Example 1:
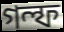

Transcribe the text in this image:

গল্ফ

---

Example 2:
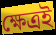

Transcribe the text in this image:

ক্ষেত্রই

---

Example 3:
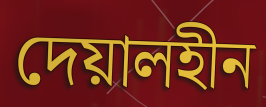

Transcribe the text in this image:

দেয়ালহীন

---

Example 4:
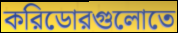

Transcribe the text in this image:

করিডোরগুলোতে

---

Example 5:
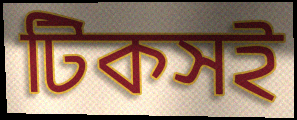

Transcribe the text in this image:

টিকসই